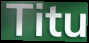
Titu